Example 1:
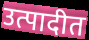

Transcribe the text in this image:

उत्पादीत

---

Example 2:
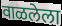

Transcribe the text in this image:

वाळलेला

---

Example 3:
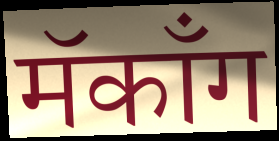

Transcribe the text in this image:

मॅकाँग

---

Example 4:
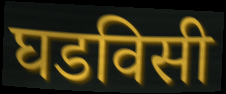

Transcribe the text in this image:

घडविसी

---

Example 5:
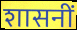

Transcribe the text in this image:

शासनीं